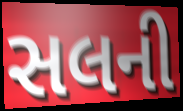
સલની